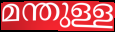
മന്തുള്ള